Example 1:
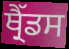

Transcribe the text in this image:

ਥ੍ਰੈੱਡਸ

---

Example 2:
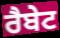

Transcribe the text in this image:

ਰੈਬੇਟ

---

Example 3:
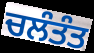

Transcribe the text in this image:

ਚਲੰਤੰਤ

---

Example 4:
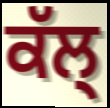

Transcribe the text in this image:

ਕੱਲ੍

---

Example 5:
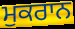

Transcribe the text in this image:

ਮੁਕਰਾਨ